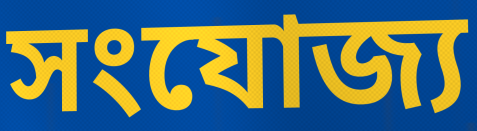
সংযোজ্য